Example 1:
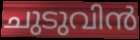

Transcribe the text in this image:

ചുടുവിൻ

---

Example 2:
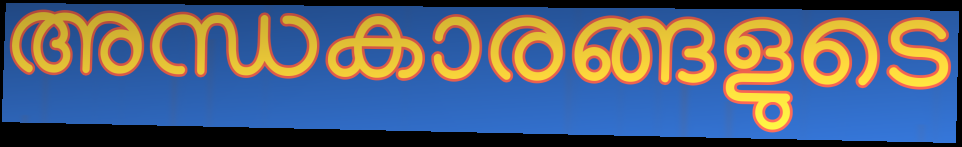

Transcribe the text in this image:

അന്ധകാരങ്ങളുടെ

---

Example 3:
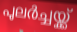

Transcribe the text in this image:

പുലർച്ചയ്ക്ക്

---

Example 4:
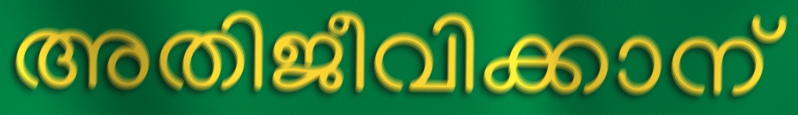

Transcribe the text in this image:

അതിജീവിക്കാന്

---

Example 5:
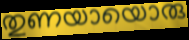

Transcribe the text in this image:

തുണയായൊരു